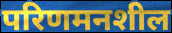
परिणमनशील